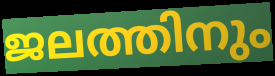
ജലത്തിനും